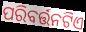
ପରିବର୍ତ୍ତନଟିଏ